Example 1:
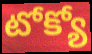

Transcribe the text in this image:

టోక్యో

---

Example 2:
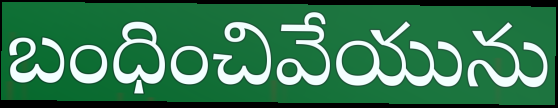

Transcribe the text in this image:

బంధించివేయును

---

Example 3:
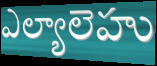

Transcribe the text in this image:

ఎల్యాలెహు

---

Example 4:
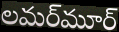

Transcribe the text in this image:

లమర్‌మూర్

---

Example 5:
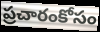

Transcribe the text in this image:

ప్రచారంకోసం